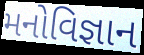
મનોવિજ્ઞાન